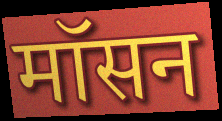
मॉसन